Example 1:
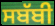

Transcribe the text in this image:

ਸਬੱਬੀ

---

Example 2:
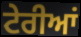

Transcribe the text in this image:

ਟੇਰੀਆਂ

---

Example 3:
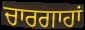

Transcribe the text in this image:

ਚਾਰਗਾਹਾਂ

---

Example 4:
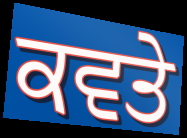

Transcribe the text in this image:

ਕਵਤੇ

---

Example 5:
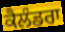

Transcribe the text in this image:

ਕੈਲੰਡਰਾ